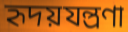
হৃদয়যন্ত্রণা